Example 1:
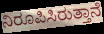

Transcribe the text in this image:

ನಿರೂಪಿಸಿರುತ್ತಾನೆ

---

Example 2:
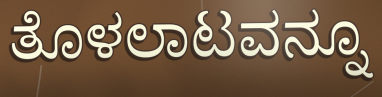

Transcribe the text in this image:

ತೊಳಲಾಟವನ್ನೂ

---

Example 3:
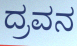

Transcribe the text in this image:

ದ್ರವನ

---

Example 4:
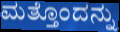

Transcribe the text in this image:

ಮತ್ತೊಂದನ್ನು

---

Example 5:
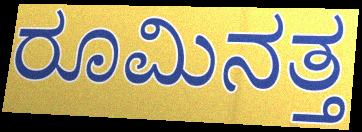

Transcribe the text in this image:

ರೂಮಿನತ್ತ